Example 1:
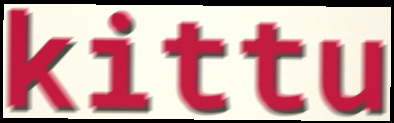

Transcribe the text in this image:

kittu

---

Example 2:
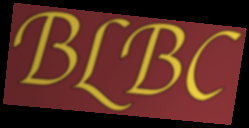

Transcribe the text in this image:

BLBC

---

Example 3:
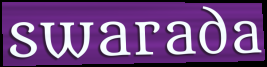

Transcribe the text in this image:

swarada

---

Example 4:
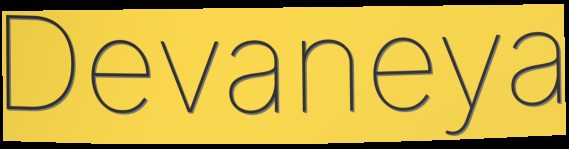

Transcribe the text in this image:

Devaneya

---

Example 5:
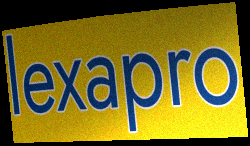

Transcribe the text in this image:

lexapro